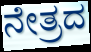
ನೇತ್ರದ